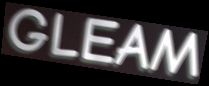
GLEAM